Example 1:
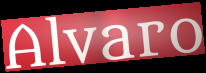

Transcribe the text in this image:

Alvaro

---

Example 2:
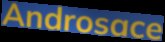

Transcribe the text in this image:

Androsace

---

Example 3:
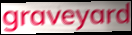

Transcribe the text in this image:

graveyard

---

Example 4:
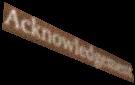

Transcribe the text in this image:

Acknowledgement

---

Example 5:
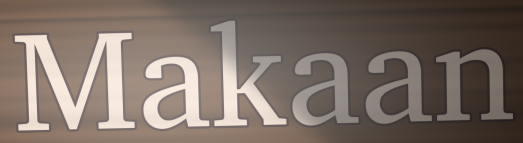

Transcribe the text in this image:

Makaan